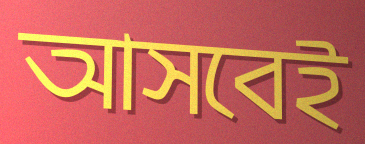
আসবেই